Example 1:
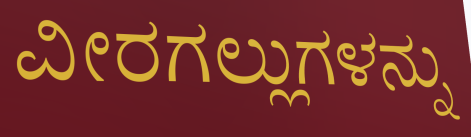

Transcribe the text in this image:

ವೀರಗಲ್ಲುಗಳನ್ನು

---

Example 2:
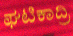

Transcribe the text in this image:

ಘಟಿಕಾದ್ರಿ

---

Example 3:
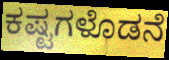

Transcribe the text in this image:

ಕಷ್ಟಗಳೊಡನೆ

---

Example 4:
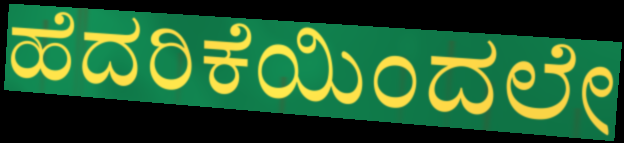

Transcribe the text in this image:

ಹೆದರಿಕೆಯಿಂದಲೇ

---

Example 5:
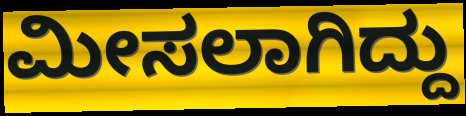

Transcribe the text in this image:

ಮೀಸಲಾಗಿದ್ದು